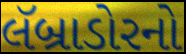
લૅબ્રાડોરનો